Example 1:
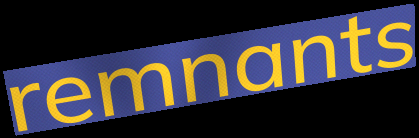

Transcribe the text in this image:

remnants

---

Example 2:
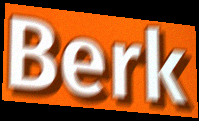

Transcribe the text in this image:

Berk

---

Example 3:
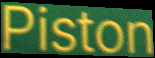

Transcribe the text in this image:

Piston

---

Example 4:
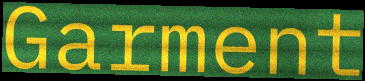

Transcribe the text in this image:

Garment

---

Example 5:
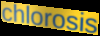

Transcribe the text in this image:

chlorosis